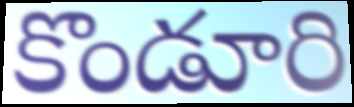
కొండూరి